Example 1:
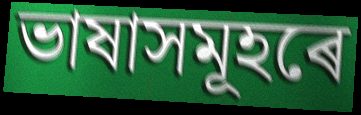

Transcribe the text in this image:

ভাষাসমূহৰে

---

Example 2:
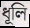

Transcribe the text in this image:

ধূলি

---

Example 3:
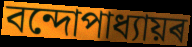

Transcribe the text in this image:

বন্দোপাধ্যায়ৰ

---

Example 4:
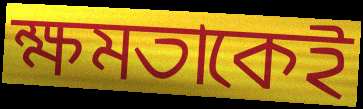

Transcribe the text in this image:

ক্ষমতাকেই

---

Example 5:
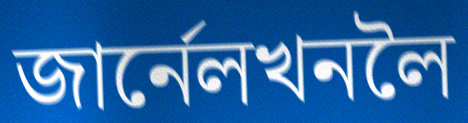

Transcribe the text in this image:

জাৰ্নেলখনলৈ